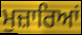
ਮੁਜ਼ਾਰਿਆਂ